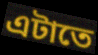
এটাতে